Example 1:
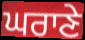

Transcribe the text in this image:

ਘਰਾਣੇ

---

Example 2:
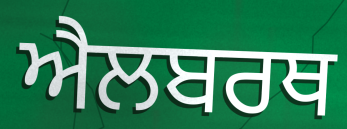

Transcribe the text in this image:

ਐਲਬਰਥ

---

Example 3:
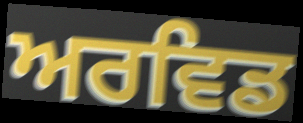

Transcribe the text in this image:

ਅਰਵਿਡ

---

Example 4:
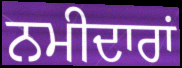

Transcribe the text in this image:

ਨਮੀਦਾਰਾਂ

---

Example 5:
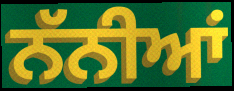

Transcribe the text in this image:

ਨੱਨੀਆਂ